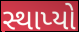
સ્થાપ્યો